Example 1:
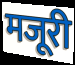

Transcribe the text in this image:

मजूरी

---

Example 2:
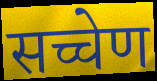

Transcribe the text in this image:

सच्चेण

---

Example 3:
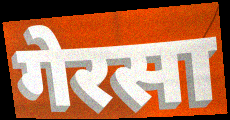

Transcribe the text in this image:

गेरसा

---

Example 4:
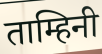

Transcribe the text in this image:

ताम्हिनी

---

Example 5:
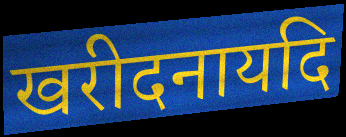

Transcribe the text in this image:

खरीदनायदि